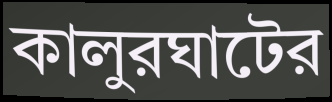
কালুরঘাটের